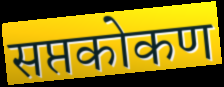
सप्तकोकण